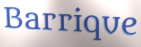
Barrique